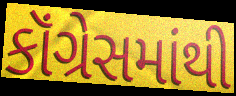
કૉંગ્રેસમાંથી